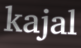
kajal